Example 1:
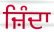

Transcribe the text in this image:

ਜ਼ਿੰਦਾ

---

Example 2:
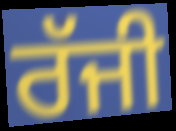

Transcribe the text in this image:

ਰੱਜੀ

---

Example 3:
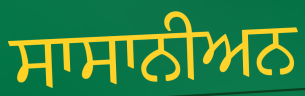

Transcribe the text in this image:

ਸਾਸਾਨੀਅਨ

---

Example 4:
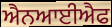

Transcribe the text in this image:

ਐਨਆਈਐਫ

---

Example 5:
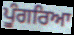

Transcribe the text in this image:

ਪੂੰਗਰਿਆ